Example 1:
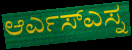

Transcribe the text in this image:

ಆರ್ಎಸ್ಎಸ್ನ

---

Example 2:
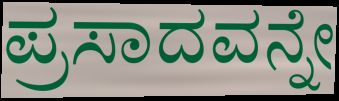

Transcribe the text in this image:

ಪ್ರಸಾದವನ್ನೇ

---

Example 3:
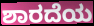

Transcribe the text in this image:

ಶಾರದೆಯ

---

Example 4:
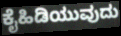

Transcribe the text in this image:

ಕೈಹಿಡಿಯುವುದು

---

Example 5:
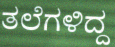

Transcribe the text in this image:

ತಲೆಗಳಿದ್ದ